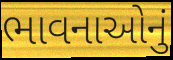
ભાવનાઓનું